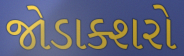
જોડાક્શરો